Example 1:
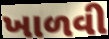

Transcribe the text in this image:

ખાળવી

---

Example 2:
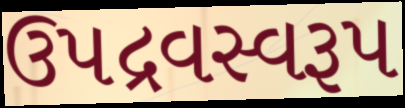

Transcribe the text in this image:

ઉપદ્રવસ્વરૂપ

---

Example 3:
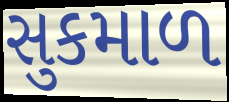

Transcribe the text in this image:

સુકમાળ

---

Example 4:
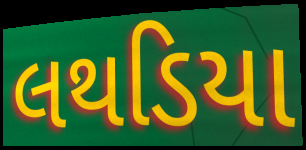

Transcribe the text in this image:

લથડિયા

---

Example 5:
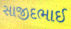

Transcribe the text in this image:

સાજીદભાઈ